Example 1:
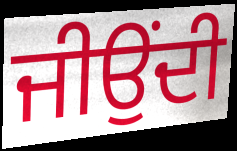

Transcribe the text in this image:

ਜੀਉਂਦੀ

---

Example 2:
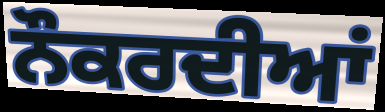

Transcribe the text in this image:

ਨੌਕਰਦੀਆਂ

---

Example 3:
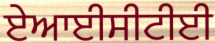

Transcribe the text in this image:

ਏਆਈਸੀਟੀਈ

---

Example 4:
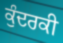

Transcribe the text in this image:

ਕੁੰਦਰਕੀ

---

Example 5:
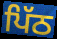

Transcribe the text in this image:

ਪਿੱਠ